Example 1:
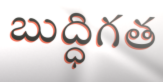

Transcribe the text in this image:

బుద్ధిగత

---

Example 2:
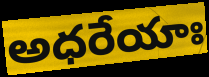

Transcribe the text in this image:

అధరేయాః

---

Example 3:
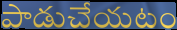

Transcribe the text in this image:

పాడుచేయటం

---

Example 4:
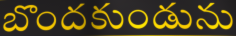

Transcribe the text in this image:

బొందకుండును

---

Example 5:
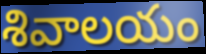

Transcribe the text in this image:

శివాలయం